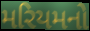
મરિયમનો